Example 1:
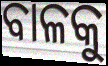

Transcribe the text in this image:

ବାଳକୁ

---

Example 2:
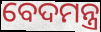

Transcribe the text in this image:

ବେଦମନ୍ତ୍ର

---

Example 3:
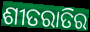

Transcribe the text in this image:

ଶୀତରାତିର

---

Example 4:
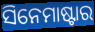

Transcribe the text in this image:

ସିନେମାଷ୍ଟାର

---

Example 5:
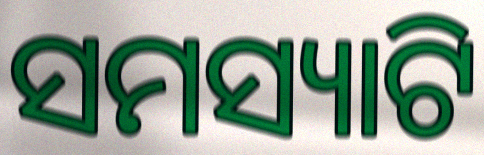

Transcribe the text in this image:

ସମସ୍ୟାଟି